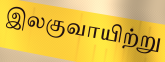
இலகுவாயிற்று